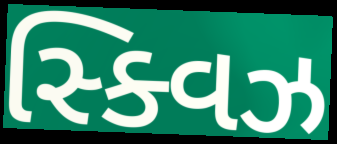
સ્ક્વિઝ